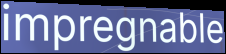
impregnable